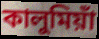
কালুমিয়াঁ